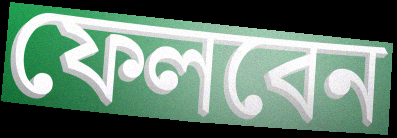
ফেলবেন